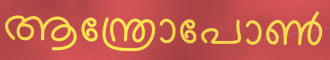
ആന്ത്രോപോൺ